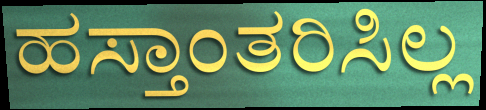
ಹಸ್ತಾಂತರಿಸಿಲ್ಲ